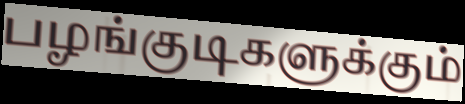
பழங்குடிகளுக்கும்